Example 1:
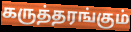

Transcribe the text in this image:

கருத்தரங்கும்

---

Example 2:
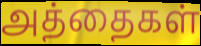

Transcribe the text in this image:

அத்தைகள்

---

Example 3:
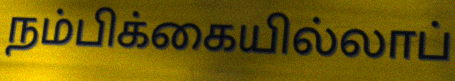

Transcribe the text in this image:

நம்பிக்கையில்லாப்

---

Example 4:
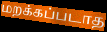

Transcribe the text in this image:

மறக்கப்படாத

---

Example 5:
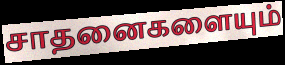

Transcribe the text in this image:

சாதனைகளையும்